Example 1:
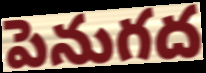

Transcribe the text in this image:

పెనుగద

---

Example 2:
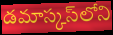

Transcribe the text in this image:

డమాస్కస్‌లోని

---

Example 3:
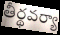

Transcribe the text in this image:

తీర్థవర్యా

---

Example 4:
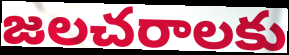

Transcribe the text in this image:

జలచరాలకు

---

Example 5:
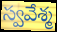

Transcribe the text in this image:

స్వవేశ్మ